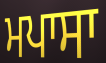
ਮਪਾਸਾ